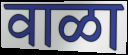
वाळा